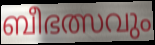
ബീഭത്സവും